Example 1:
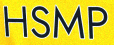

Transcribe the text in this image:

HSMP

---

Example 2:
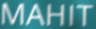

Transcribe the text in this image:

MAHIT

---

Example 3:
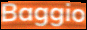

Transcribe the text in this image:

Baggio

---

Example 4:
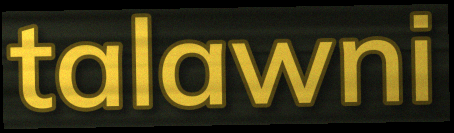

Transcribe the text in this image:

talawni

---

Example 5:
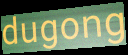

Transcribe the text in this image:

dugong